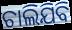
ଚାଲିଯିବି